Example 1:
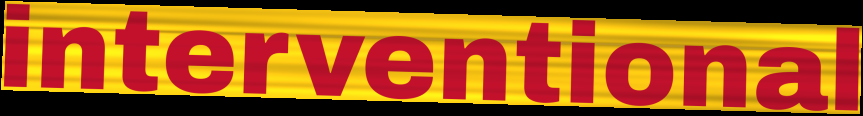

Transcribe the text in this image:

interventional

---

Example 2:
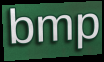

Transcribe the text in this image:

bmp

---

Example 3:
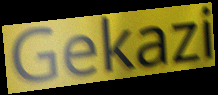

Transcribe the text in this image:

Gekazi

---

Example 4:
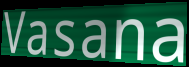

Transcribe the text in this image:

Vasana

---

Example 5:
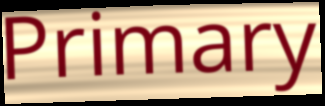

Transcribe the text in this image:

Primary